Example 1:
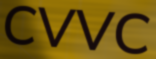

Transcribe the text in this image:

CVVC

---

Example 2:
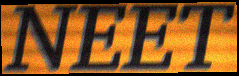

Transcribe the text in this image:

NEET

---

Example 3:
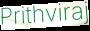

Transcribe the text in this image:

Prithviraj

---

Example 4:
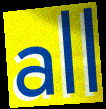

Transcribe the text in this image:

all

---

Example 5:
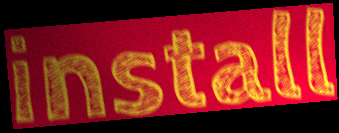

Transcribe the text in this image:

install